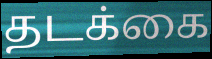
தடக்கை